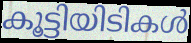
കൂട്ടിയിടികൾ